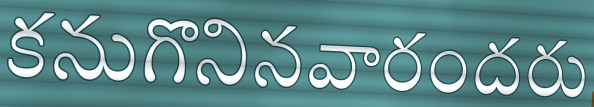
కనుగొనినవారందరు